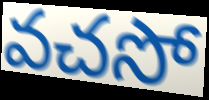
వచసో